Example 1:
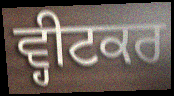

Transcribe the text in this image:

ਵ੍ਹੀਟਕਰ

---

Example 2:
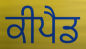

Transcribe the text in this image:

ਕੀਪੈਡ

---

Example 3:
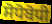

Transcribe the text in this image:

ਸੋਧੋਬੋਧੀ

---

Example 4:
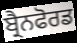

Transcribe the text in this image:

ਬ੍ਰੈਨਫੋਰਡ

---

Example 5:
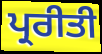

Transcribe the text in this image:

ਪ੍ਰਰੀਤੀ